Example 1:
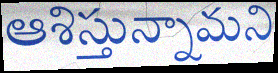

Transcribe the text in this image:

ఆశిస్తున్నామని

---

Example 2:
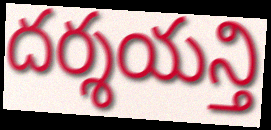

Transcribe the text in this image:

దర్శయన్తి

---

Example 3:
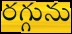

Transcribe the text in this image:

రగ్గును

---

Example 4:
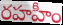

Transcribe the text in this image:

రహహీం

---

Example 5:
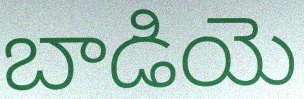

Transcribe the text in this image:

బాడియె